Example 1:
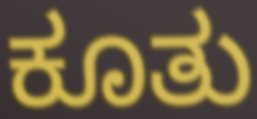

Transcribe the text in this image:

ಕೂತು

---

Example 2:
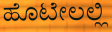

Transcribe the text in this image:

ಹೊಟೇಲಲ್ಲಿ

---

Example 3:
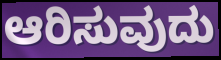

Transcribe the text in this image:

ಆರಿಸುವುದು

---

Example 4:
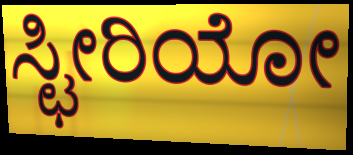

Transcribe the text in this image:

ಸ್ಟೀರಿಯೋ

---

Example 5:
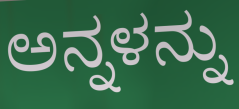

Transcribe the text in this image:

ಅನ್ನಳನ್ನು